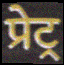
प्रेट्र